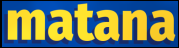
matana